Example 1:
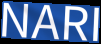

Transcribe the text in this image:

NARI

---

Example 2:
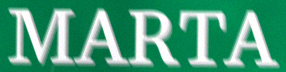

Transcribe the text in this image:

MARTA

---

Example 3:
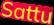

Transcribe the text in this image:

Sattu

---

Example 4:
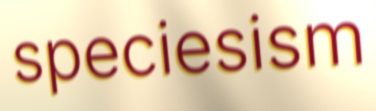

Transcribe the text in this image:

speciesism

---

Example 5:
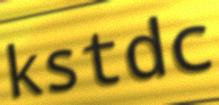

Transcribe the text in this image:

kstdc